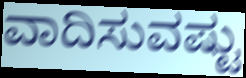
ವಾದಿಸುವಷ್ಟು